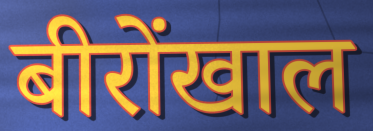
बीरोंखाल